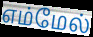
எம்மேல்